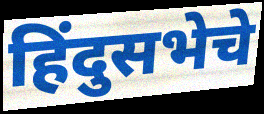
हिंदुसभेचे